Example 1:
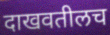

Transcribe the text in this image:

दाखवतीलच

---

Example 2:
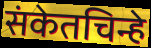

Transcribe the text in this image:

संकेतचिन्हे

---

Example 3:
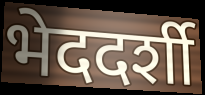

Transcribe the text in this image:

भेददर्शी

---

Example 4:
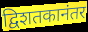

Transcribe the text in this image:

द्विशतकानंतर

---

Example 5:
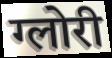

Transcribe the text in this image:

ग्लोरी